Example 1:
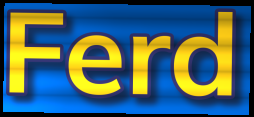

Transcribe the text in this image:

Ferd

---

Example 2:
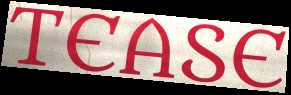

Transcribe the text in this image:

TEASE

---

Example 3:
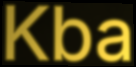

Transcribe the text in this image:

Kba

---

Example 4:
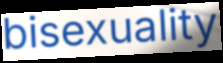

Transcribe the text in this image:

bisexuality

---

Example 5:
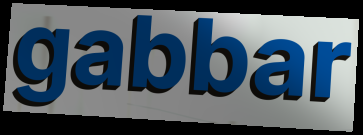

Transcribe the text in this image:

gabbar